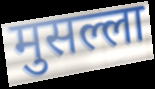
मुसल्ला